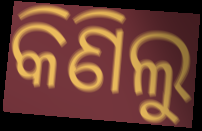
କିଣିଲୁ